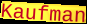
Kaufman